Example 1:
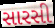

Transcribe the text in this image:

સારસી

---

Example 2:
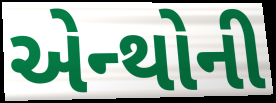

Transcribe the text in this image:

એન્થોની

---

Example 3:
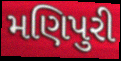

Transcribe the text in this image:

મણિપુરી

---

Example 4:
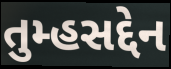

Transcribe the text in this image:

તુમ્હસદ્દેન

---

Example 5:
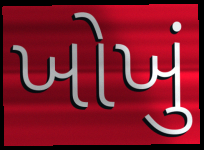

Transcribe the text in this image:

ખોખું